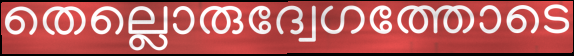
തെല്ലൊരുദ്വേഗത്തോടെ